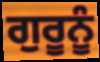
ਗੁਰੂਨੂੰ